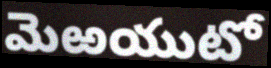
మెఱయుటో